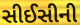
સીઈસીની